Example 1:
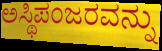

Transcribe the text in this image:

ಅಸ್ಥಿಪಂಜರವನ್ನು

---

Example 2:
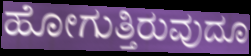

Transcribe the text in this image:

ಹೋಗುತ್ತಿರುವುದೂ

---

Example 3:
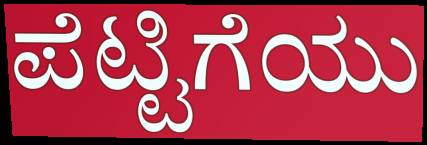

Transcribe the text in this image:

ಪೆಟ್ಟಿಗೆಯು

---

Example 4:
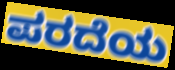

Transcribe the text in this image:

ಪರದೆಯ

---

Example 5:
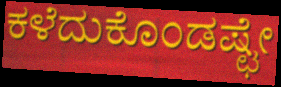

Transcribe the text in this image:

ಕಳೆದುಕೊಂಡಷ್ಟೇ